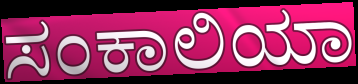
ಸಂಕಾಲಿಯಾ